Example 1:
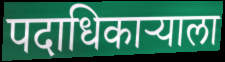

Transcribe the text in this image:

पदाधिकाऱ्याला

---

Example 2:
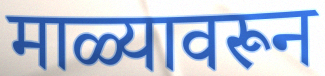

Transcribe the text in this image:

माळ्यावरून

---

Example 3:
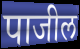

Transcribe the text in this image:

पाजील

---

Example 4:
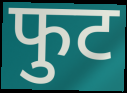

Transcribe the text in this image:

फुट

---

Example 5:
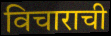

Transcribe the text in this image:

विचाराची